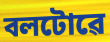
বলটোৱে